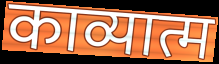
काव्यात्म